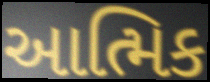
આત્મિક